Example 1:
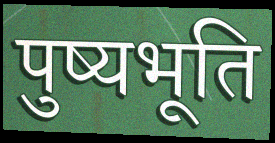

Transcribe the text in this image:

पुष्यभूति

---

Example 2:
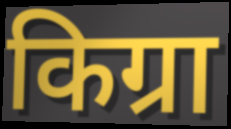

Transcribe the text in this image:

किग्रा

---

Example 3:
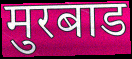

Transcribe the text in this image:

मुरबाड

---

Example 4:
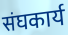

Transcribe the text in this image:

संघकार्य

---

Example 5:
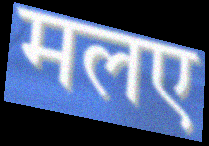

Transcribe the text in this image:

मलए